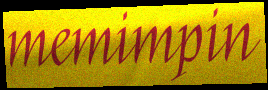
memimpin